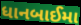
ધાનબાઈમા